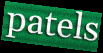
patels